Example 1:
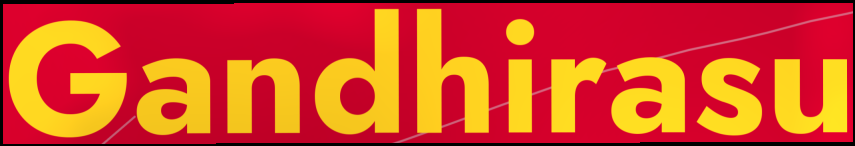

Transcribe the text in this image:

Gandhirasu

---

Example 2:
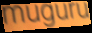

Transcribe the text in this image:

muguru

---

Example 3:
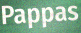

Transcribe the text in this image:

Pappas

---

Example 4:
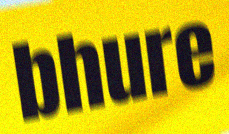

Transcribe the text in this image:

bhure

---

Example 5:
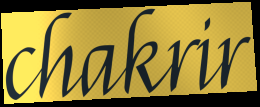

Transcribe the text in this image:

chakrir